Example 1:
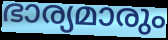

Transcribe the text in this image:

ഭാര്യമാരും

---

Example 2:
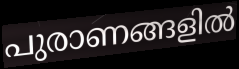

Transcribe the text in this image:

പുരാണങ്ങളിൽ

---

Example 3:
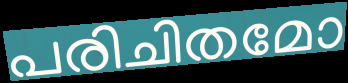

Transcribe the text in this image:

പരിചിതമോ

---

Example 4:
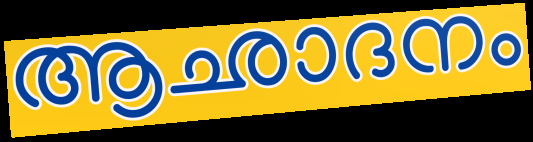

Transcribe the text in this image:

ആഛാദനം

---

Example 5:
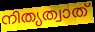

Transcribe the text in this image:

നിത്യത്വാത്